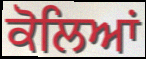
ਕੋਲਿਆਂ